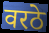
वरठे